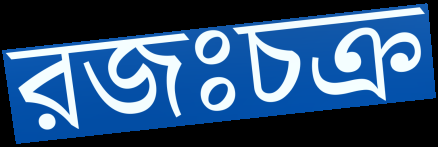
রজঃচক্র